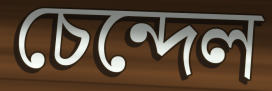
চেন্দেল